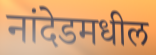
नांदेडमधील